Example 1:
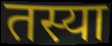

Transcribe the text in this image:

तस्या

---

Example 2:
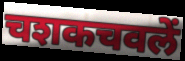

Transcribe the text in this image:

चशकचवलें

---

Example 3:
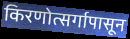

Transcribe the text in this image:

किरणोत्सर्गापासून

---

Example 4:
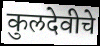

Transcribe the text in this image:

कुलदेवीचे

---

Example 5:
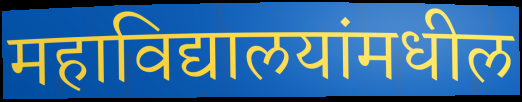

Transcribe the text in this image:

महाविद्यालयांमधील